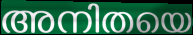
അനിതയെ